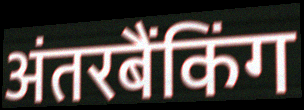
अंतरबैंकिंग